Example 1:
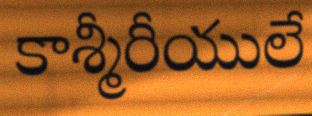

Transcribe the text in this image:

కాశ్మీరీయులే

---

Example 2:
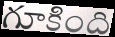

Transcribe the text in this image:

గూకింది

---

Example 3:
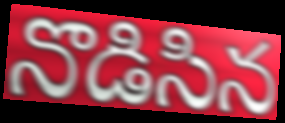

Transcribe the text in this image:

నొడిసిన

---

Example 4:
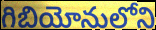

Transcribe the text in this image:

గిబియోనులోని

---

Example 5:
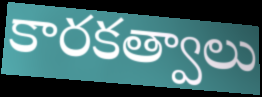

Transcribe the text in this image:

కారకత్వాలు